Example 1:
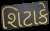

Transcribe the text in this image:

શિટાકે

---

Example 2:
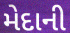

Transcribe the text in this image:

મેદાની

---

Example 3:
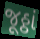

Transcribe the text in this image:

જૂઠ્ઠાં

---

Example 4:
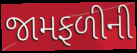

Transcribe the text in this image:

જામફળીની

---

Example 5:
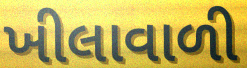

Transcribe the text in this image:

ખીલાવાળી